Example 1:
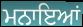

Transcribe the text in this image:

ਮਨਾਇਆਂ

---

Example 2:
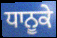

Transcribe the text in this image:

ਧਾਨੂਕੇ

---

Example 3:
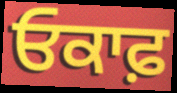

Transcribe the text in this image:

ਓਕਾਫ਼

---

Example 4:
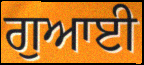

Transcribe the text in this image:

ਗੁਆਈ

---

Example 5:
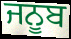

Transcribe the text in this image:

ਜਨੂਬ